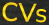
CVs